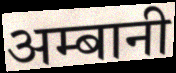
अम्‍बानी